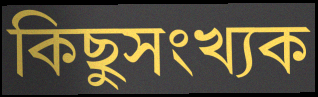
কিছুসংখ্যক